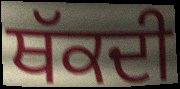
ਥੱਕਦੀ